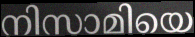
നിസാമിയെ